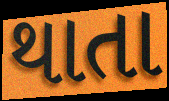
થાતા